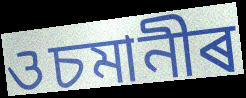
ওচমানীৰ